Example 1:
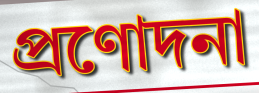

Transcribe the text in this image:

প্রণোদনা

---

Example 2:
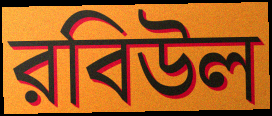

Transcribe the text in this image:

রবিউল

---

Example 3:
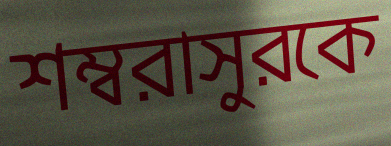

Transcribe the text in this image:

শম্বরাসুরকে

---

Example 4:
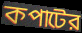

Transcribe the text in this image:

কপাটের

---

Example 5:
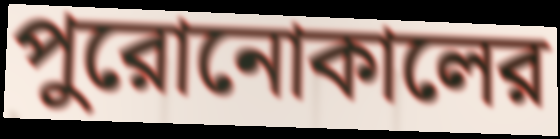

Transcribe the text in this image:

পুরোনোকালের